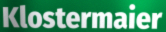
Klostermaier